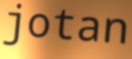
jotan